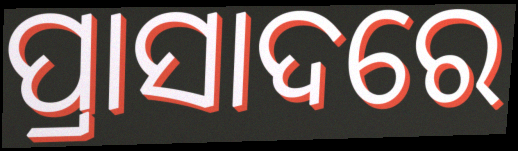
ପ୍ରାସାଦରେ